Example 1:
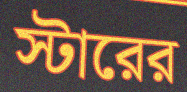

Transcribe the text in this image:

স্টারের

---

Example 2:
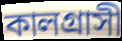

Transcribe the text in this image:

কালগ্রাসী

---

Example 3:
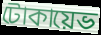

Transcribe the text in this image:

টোকায়েভ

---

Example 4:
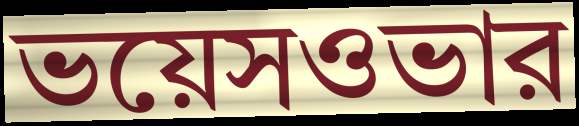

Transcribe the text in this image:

ভয়েসওভার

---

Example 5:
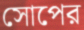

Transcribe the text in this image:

সোপের